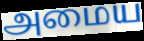
அமைய